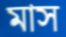
মাস